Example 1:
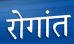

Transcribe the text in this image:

रोगांत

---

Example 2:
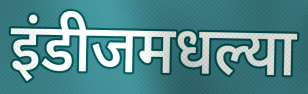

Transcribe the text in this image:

इंडीजमधल्या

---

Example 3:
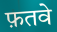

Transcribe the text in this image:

फ़तवे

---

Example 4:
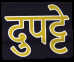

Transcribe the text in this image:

दुपट्टे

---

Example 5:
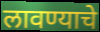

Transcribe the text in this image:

लावण्याचे